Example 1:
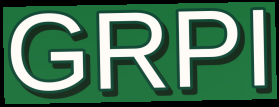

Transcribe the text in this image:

GRPI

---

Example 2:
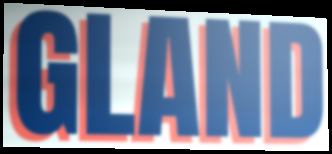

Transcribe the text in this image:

GLAND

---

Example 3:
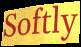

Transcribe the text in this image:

Softly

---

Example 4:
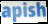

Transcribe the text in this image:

apish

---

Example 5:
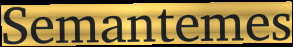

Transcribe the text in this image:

Semantemes